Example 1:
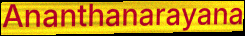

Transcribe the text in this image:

Ananthanarayana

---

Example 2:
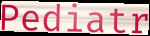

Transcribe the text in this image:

Pediatr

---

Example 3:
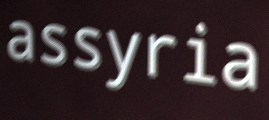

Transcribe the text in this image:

assyria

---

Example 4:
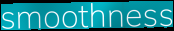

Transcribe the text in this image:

smoothness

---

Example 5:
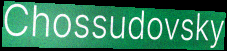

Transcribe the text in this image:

Chossudovsky